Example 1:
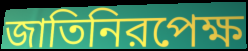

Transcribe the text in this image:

জাতিনিরপেক্ষ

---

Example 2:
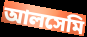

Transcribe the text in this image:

আলসেমি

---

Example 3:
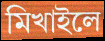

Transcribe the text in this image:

মিখাইলে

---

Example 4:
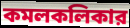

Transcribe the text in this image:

কমলকলিকার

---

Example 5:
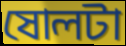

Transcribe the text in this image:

ষোলটা